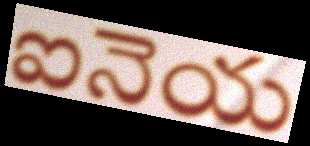
ఐనెయ